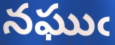
నఘుఁ